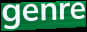
genre